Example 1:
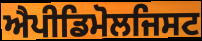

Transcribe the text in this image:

ਐਪੀਡਿਮੋਲਜਿਸਟ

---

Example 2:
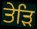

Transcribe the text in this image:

ਤੇੜਿ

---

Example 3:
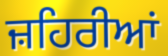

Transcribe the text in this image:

ਜ਼ਹਿਰੀਆਂ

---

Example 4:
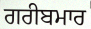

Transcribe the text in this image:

ਗਰੀਬਮਾਰ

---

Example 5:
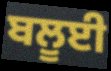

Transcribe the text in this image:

ਬਲੂਈ